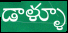
డాళ్ళూ